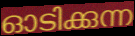
ഓടിക്കുന്ന